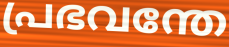
പ്രഭവന്തേ